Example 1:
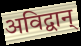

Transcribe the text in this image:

अविद्वान्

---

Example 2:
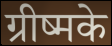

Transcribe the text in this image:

ग्रीष्मके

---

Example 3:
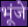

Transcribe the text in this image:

भूंजे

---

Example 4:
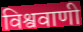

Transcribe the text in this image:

विश्ववाणी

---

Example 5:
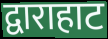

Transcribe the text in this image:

द्वाराहाट